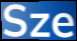
Sze